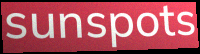
sunspots